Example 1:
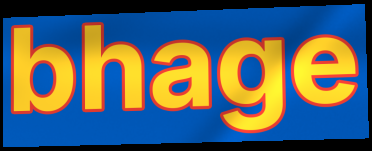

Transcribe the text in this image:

bhage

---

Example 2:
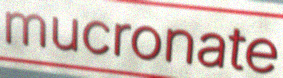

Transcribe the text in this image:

mucronate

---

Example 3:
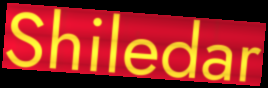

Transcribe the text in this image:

Shiledar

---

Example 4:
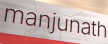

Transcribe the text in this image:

manjunath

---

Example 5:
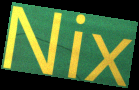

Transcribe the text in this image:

Nix